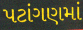
પટાંગણમાં